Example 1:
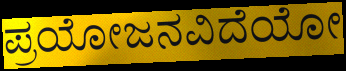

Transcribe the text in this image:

ಪ್ರಯೋಜನವಿದೆಯೋ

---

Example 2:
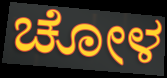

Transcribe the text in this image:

ಚೋಳ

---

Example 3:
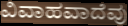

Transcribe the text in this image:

ವಿವಾಹವಾದೆವು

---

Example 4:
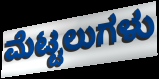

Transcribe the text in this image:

ಮೆಟ್ಟಲುಗಳು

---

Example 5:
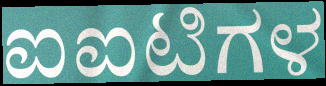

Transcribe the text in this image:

ಐಐಟಿಗಳ